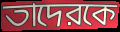
তাদেরকে